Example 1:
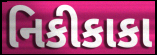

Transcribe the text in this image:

નિકીકાકા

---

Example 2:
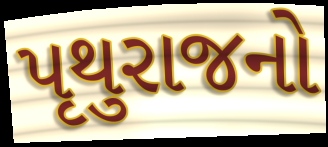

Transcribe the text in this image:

પૃથુરાજનો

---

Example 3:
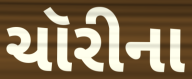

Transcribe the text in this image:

ચૉરીના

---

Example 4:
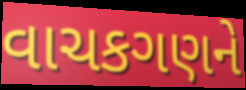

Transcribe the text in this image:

વાચકગણને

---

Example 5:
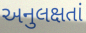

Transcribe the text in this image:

અનુલક્ષતાં